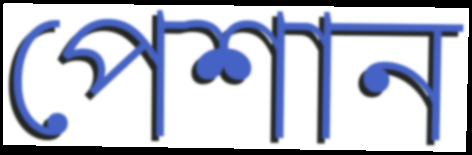
পেশান